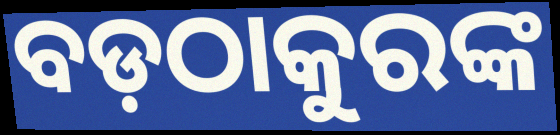
ବଡ଼ଠାକୁରଙ୍କ